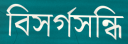
বিসর্গসন্ধি